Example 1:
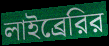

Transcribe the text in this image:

লাইব্রেরির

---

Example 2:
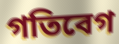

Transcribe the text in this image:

গতিবেগ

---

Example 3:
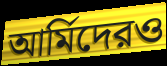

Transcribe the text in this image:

আর্মিদেরও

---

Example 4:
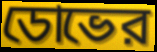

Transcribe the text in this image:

ডোভের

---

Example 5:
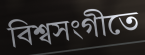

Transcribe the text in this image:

বিশ্বসংগীতে